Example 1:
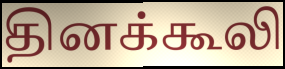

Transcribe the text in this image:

தினக்கூலி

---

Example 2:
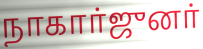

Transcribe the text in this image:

நாகார்ஜுனர்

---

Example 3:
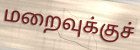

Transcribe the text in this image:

மறைவுக்குச்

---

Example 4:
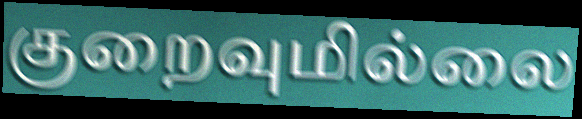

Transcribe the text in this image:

குறைவுமில்லை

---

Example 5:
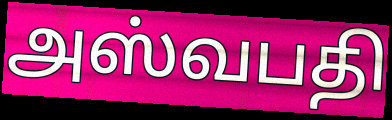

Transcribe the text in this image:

அஸ்வபதி